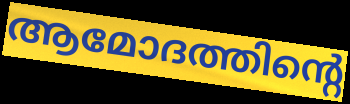
ആമോദത്തിന്റെ